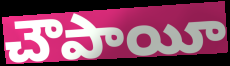
చౌపాయీ